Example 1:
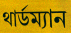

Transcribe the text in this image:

থার্ডম্যান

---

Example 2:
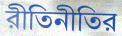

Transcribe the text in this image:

রীতিনীতির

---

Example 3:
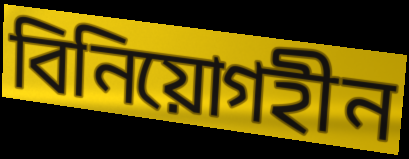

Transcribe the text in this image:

বিনিয়োগহীন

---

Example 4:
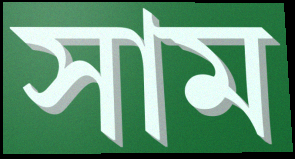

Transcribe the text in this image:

সাম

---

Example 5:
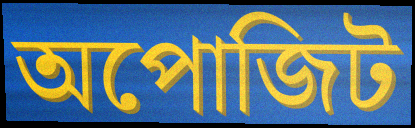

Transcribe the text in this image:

অপোজিট